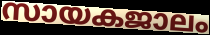
സായകജാലം